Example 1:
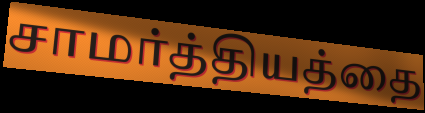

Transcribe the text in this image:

சாமர்த்தியத்தை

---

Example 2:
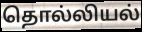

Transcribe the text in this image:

தொல்லியல்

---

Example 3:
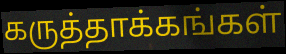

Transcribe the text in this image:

கருத்தாக்கங்கள்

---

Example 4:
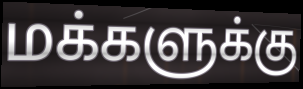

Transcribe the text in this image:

மக்களுக்கு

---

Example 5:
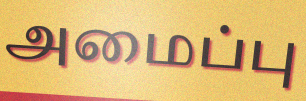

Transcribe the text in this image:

அமைப்பு